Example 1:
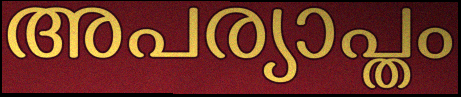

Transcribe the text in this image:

അപര്യാപ്തം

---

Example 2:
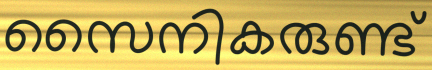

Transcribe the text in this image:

സൈനികരുണ്ട്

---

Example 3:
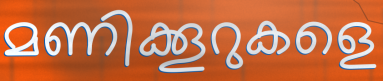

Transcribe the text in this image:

മണിക്കൂറുകളെ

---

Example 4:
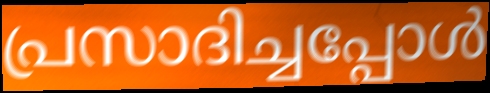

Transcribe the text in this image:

പ്രസാദിച്ചപ്പോൾ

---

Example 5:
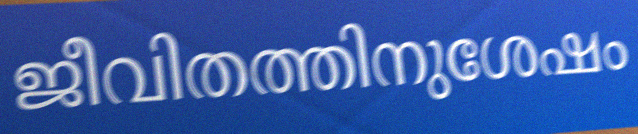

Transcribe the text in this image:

ജീവിതത്തിനുശേഷം